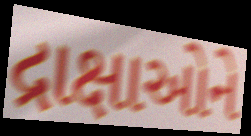
દ્રાક્ષાઓને